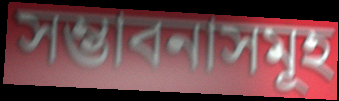
সম্ভাবনাসমূহ